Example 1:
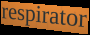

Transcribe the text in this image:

respirator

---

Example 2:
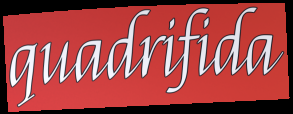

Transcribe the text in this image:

quadrifida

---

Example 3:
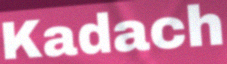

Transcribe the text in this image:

Kadach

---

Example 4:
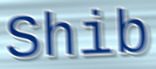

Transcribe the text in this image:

Shib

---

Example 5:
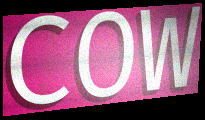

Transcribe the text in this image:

COW